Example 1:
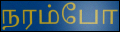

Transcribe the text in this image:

நரம்போ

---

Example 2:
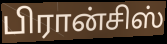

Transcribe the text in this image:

பிரான்சிஸ்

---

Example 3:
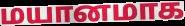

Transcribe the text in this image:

மயானமாக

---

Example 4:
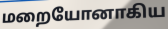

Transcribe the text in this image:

மறையோனாகிய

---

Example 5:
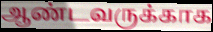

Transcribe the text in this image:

ஆண்டவருக்காக